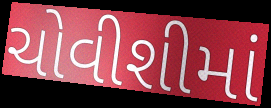
ચોવીશીમાં